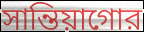
সান্তিয়াগোর